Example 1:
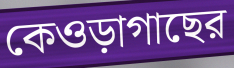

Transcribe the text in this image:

কেওড়াগাছের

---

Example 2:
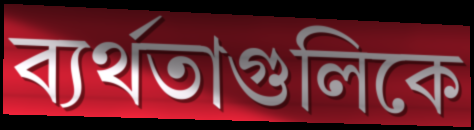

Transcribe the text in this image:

ব্যর্থতাগুলিকে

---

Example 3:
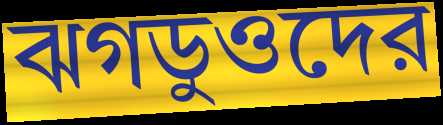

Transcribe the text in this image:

ঝগডুওদের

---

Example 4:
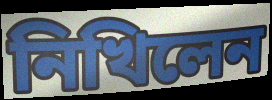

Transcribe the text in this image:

নিখিলেন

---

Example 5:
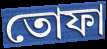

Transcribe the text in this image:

তোফা